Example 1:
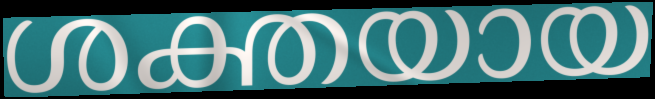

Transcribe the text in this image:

ശക്തയായ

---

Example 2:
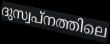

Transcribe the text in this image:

ദുസ്വപ്നത്തിലെ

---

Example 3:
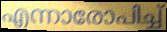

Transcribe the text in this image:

എന്നാരോപിച്ച്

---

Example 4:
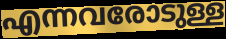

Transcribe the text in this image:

എന്നവരോടുള്ള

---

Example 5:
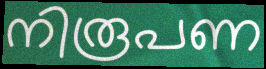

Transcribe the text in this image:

നിരൂപണ